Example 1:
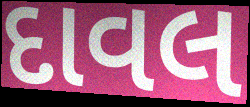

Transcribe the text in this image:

દાવલ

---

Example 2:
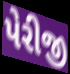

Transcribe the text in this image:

પેરીજી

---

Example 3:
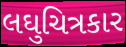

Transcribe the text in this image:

લઘુચિત્રકાર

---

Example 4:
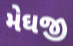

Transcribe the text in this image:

મેઘજી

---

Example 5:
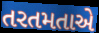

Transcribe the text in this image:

તરતમતાએ